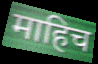
माहिच